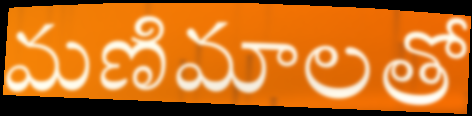
మణిమాలతో